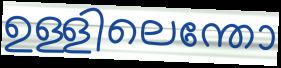
ഉള്ളിലെന്തോ